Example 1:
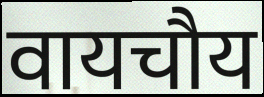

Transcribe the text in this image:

वायचौय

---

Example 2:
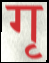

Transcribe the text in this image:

गृ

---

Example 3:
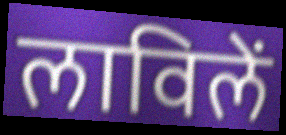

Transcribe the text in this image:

लाविलें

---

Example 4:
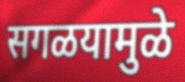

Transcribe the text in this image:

सगळयामुळे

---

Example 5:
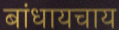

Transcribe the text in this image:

बांधायचाय